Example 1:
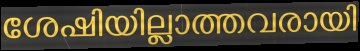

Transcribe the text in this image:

ശേഷിയില്ലാത്തവരായി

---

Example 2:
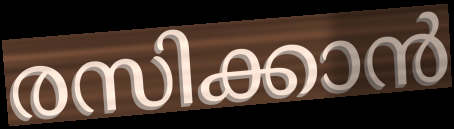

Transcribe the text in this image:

രസിക്കാൻ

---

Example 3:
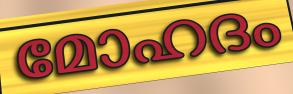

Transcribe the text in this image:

മോഹദം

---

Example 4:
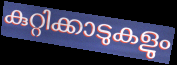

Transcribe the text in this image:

കുറ്റിക്കാടുകളും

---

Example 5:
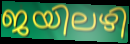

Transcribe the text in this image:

ജയിലഴി